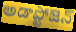
అడాప్టోజెన్